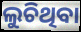
ଲୁଚିଥିବା